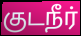
குடநீர்